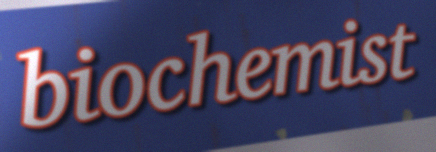
biochemist